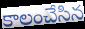
కాలంచేసిన